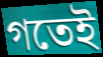
গতেই